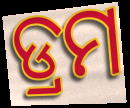
ଡ୍ରମ